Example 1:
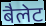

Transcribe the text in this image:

बैलेट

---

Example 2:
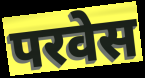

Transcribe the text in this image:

परवेस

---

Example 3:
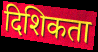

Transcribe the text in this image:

दिशिकता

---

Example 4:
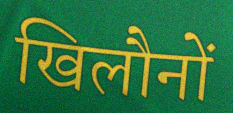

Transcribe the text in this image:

खिलौनों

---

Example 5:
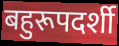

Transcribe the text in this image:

बहुरूपदर्शी